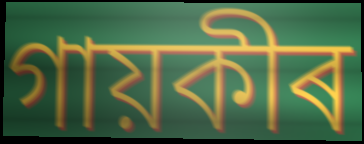
গায়কীৰ